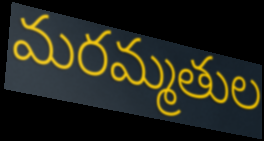
మరమ్మతుల